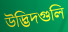
উদ্ভিদগুলি